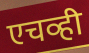
एचव्ही